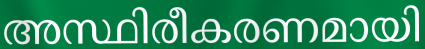
അസ്ഥിരീകരണമായി